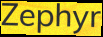
Zephyr